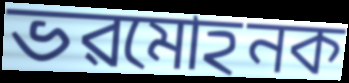
ভৱমোহনক